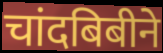
चांदबिबीने